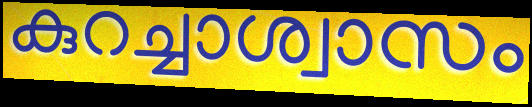
കുറച്ചാശ്വാസം